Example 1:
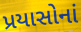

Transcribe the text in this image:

પ્રયાસોનાં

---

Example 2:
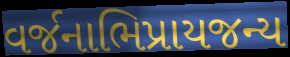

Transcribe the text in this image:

વર્જનાભિપ્રાયજન્ય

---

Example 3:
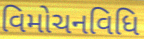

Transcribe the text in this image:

વિમોચનવિધિ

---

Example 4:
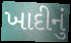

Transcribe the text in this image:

ખાદીનું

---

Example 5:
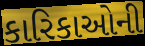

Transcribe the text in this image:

કારિકાઓની